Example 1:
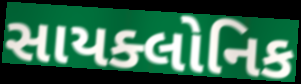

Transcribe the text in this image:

સાયક્લોનિક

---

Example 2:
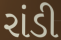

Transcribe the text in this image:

રાંડી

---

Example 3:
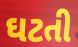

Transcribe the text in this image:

ઘટતી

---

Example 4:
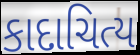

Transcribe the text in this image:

કાદાચિત્ય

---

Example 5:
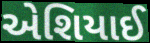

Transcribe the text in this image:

એશિયાઈ